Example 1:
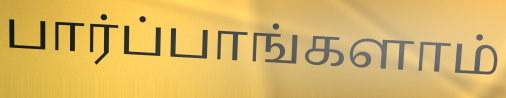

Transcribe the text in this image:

பார்ப்பாங்களாம்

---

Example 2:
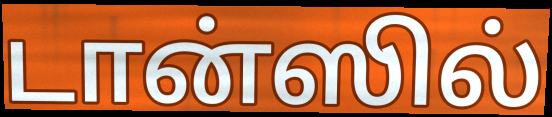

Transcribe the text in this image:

டான்ஸில்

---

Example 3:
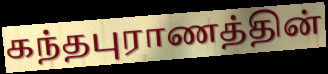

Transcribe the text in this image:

கந்தபுராணத்தின்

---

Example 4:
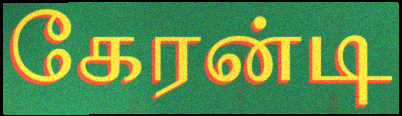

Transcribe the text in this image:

கேரன்டி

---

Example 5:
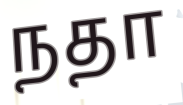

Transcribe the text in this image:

நதா